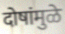
दोषांमुळे